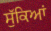
ਸੁੱਕਿਆਂ